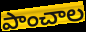
పాంచాల